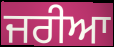
ਜਰੀਆ